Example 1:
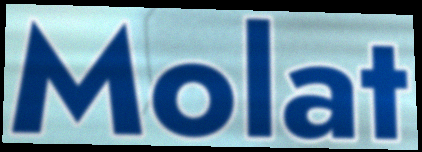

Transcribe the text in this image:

Molat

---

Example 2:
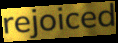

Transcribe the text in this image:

rejoiced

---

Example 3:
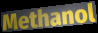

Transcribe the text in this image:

Methanol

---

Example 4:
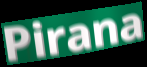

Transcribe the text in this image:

Pirana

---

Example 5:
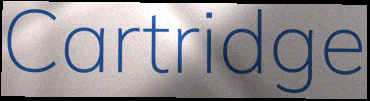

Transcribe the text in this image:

Cartridge